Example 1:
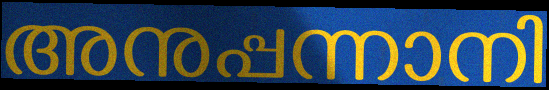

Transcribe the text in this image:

അനുപ്പന്നാനി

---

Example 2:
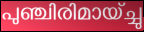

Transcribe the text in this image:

പുഞ്ചിരിമായ്ച്ചു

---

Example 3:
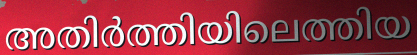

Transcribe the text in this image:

അതിർത്തിയിലെത്തിയ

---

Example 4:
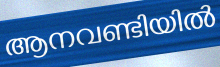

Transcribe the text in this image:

ആനവണ്ടിയിൽ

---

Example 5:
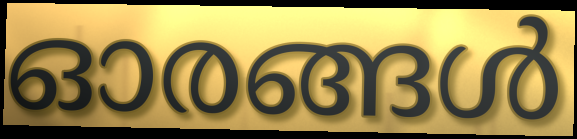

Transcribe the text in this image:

ഓരങ്ങൾ